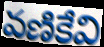
వణికేవి